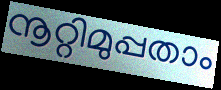
നൂറ്റിമുപ്പതാം